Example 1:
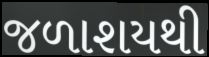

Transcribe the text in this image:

જળાશયથી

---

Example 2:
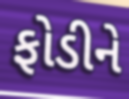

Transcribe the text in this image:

ફોડીને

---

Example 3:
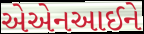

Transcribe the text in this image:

એએનઆઈને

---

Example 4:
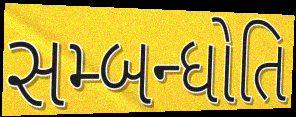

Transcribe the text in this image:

સમ્બન્ધોતિ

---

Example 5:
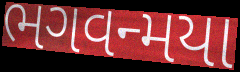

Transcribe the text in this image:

ભગવન્મયા